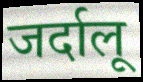
जर्दालू